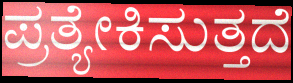
ಪ್ರತ್ಯೇಕಿಸುತ್ತದೆ